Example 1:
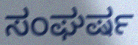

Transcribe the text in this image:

ಸಂಘರ್ಷ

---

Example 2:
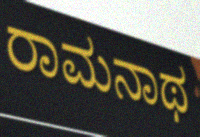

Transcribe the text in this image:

ರಾಮನಾಥ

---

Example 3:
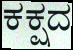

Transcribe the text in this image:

ಕಕ್ಷದ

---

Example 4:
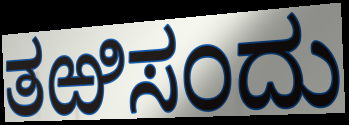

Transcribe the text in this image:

ತಱಿಸಂದು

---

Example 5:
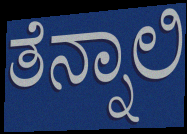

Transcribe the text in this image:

ತೆನ್ನಾಲಿ